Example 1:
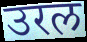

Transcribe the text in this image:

उरल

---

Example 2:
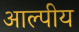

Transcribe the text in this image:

आल्पीय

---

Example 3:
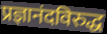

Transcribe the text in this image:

प्रज्ञानंदविरुद्ध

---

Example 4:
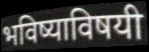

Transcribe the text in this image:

भविष्याविषयी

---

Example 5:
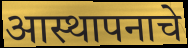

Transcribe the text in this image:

आस्थापनाचे